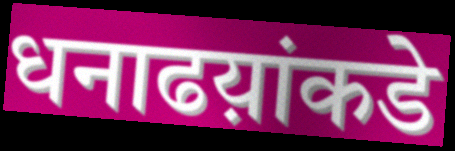
धनाढय़ांकडे